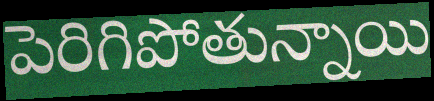
పెరిగిపోతున్నాయి